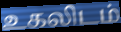
உகலிடம்